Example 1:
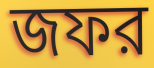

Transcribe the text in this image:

জফর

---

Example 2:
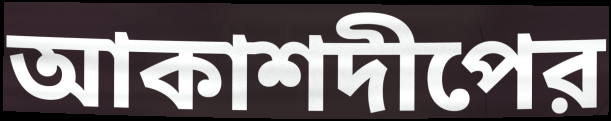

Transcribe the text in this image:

আকাশদীপের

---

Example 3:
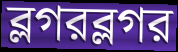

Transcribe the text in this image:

ব্লগরব্লগর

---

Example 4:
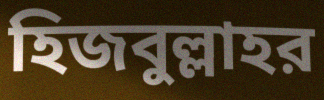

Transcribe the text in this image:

হিজবুল্লাহর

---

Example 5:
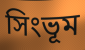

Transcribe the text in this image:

সিংভূম